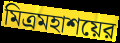
মিত্রমহাশয়ের